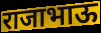
राजाभाऊ